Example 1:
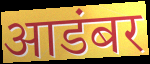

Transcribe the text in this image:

आडंबर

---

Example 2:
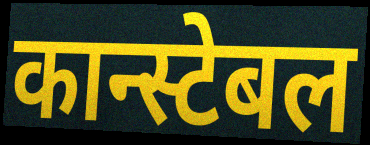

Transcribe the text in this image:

कान्स्टेबल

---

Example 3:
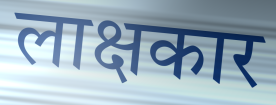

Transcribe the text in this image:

लाक्षकार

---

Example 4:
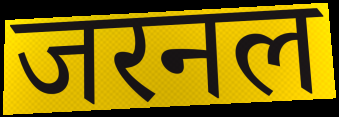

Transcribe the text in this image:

जरनल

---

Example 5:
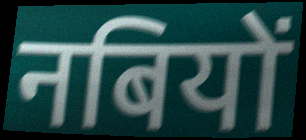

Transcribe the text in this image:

नबियों